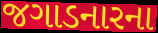
જગાડનારના